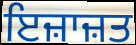
ਇਜ਼ਾਜ਼ਤ